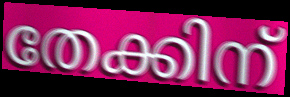
തേക്കിന്